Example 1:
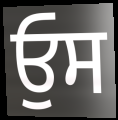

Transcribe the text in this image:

ਓੁਸ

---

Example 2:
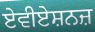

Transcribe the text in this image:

ਏਵੀਏਸ਼ਨਜ਼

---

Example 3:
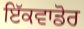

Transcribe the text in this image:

ਇੱਕਵਾਡੋਰ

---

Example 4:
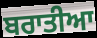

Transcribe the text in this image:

ਬਰਾਤੀਆ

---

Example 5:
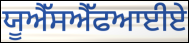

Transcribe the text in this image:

ਯੂਐੱਸਐੱਫਆਈਏ